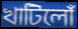
খাটিলোঁ